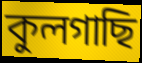
কুলগাছি